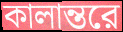
কালান্তরে